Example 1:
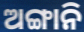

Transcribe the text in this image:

ଅଙ୍ଗାନି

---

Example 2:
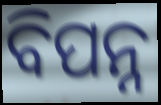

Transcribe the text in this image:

ବିପନ୍ନ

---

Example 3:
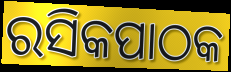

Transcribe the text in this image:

ରସିକପାଠକ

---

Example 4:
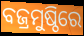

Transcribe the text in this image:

ବଜ୍ରମୁଷ୍ଠିରେ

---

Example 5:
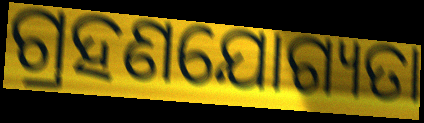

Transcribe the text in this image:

ଗ୍ରହଣଯୋଗ୍ୟତା